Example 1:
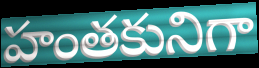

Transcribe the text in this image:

హంతకునిగా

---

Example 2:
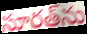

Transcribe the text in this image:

సూరత్‌ను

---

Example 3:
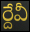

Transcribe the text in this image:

ర్దేవీ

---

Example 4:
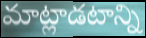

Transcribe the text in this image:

మాట్లాడటాన్ని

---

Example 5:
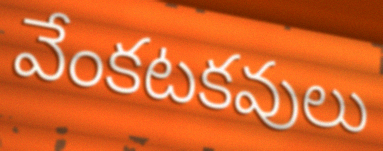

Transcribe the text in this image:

వేంకటకవులు